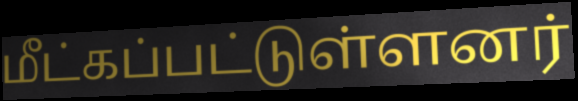
மீட்கப்பட்டுள்ளனர்